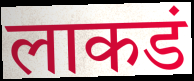
लाकडं